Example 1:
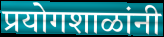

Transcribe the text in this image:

प्रयोगशाळांनी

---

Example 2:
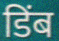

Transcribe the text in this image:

डिंब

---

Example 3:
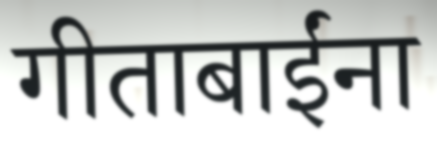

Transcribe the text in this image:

गीताबाईंना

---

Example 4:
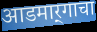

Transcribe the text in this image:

आडमार्गाचा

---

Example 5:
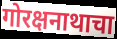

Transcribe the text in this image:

गोरक्षनाथाचा